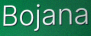
Bojana